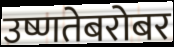
उष्णतेबरोबर